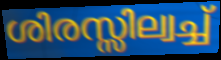
ശിരസ്സില്വച്ച്